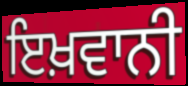
ਇਖ਼ਵਾਨੀ